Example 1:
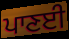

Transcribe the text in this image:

ਪਾਣਈ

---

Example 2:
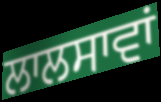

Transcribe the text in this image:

ਲਾਲਸਾਵਾਂ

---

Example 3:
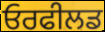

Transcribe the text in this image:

ਓਰਫੀਲਡ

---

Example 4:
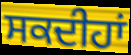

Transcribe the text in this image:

ਸਕਦੀਹਾਂ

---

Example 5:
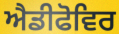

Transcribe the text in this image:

ਐਡੀਫੋਵਿਰ